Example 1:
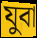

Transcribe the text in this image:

যুবা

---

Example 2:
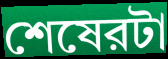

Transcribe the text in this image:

শেষেরটা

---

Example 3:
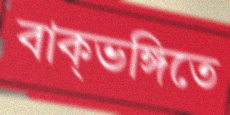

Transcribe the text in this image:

বাক্ভঙ্গিতে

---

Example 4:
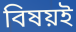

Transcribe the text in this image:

বিষয়ই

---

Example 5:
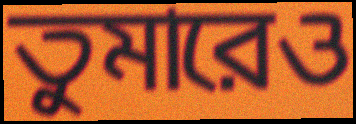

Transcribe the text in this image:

তুমারেও